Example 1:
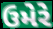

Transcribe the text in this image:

ઉમેરે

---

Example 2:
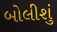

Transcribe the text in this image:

બોલીશું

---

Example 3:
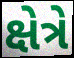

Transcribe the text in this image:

ક્ષેત્રે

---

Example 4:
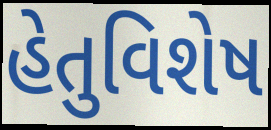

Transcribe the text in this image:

હેતુવિશેષ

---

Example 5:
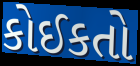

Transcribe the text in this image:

કોઈકતો